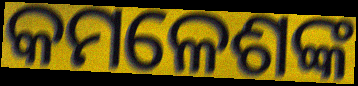
କମଳେଶଙ୍କ